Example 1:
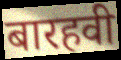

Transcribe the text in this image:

बारहवी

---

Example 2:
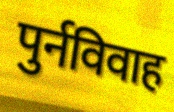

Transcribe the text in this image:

पुर्नविवाह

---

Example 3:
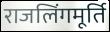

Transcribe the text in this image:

राजलिंगमूर्ति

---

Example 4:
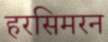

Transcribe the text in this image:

हरसिमरन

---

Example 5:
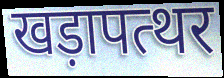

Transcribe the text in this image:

खड़ापत्थर